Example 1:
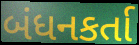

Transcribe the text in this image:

બંધનકર્તા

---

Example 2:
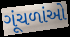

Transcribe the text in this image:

ગૂંચળાંઓ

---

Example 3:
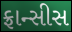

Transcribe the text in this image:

ફ્રાન્સીસ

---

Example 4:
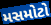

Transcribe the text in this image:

મસમોટો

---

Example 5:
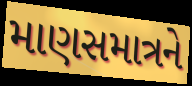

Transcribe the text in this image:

માણસમાત્રને